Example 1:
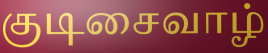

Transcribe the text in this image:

குடிசைவாழ்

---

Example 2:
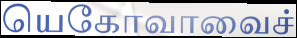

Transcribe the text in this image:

யெகோவாவைச்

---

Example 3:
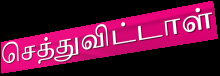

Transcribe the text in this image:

செத்துவிட்டாள்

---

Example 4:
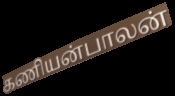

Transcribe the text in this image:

கணியன்பாலன்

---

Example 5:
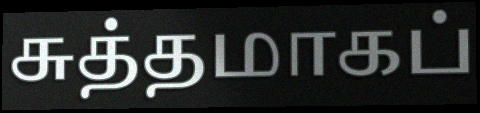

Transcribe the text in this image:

சுத்தமாகப்